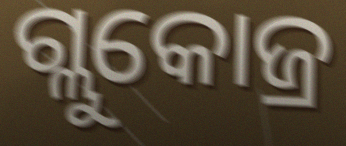
ଗ୍ଲୁକୋଜ୍ର